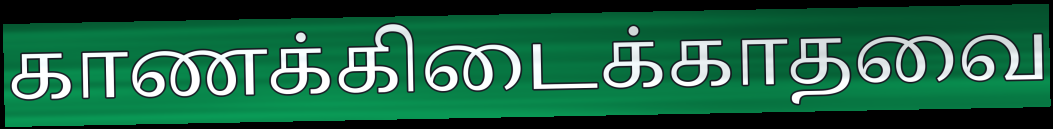
காணக்கிடைக்காதவை